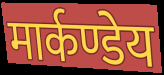
मार्कण्डेय